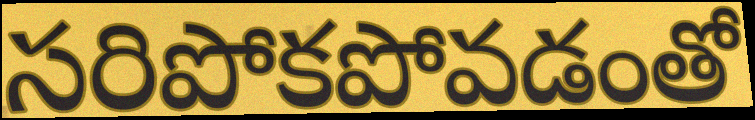
సరిపోకపోవడంతో